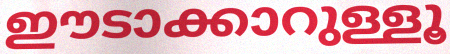
ഈടാക്കാറുള്ളൂ